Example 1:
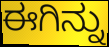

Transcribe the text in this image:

ಈಗಿನ್ನು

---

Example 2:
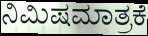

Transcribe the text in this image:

ನಿಮಿಷಮಾತ್ರಕೆ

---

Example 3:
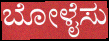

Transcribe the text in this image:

ಬೋಳೈಸು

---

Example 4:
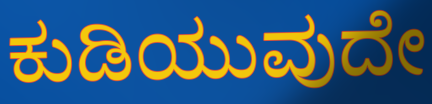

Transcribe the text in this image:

ಕುಡಿಯುವುದೇ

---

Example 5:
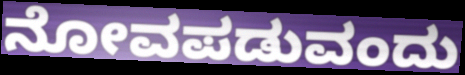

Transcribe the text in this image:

ನೋವಪಡುವಂದು